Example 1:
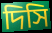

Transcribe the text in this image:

দিসি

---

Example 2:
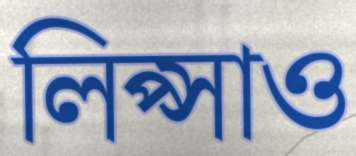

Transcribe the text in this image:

লিপ্সাও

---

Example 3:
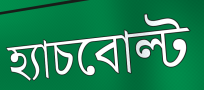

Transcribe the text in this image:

হ্যাচবোল্ট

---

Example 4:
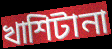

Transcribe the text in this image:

খাশিটানা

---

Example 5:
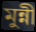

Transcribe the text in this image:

মুন্নী